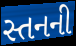
સ્તનની